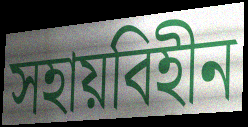
সহায়বিহীন